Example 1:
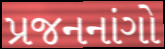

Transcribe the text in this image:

પ્રજનનાંગો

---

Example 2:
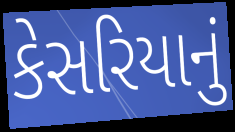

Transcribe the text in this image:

કેસરિયાનું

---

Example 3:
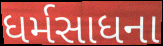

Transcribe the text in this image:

ધર્મસાધના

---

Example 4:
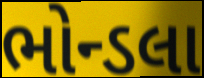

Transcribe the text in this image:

ભોન્ડલા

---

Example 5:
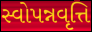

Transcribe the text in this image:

સ્વોપન્નવૃત્તિ